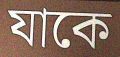
যাকে